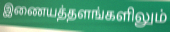
இணையத்தளங்களிலும்